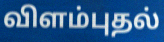
விளம்புதல்